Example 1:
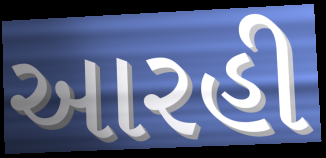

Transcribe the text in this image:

આરહી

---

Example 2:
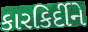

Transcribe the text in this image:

કારકિર્દીને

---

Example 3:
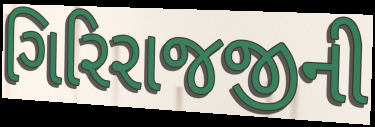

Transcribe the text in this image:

ગિરિરાજજીની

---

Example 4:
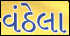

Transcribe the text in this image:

વંઠેલા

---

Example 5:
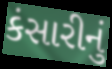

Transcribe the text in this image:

કંસારીનું